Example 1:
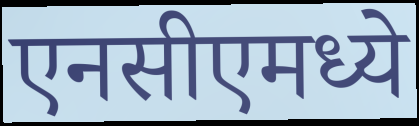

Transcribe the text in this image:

एनसीएमध्ये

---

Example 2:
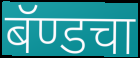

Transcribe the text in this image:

बॅण्डचा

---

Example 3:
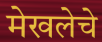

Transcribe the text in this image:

मेखलेचे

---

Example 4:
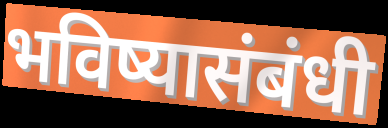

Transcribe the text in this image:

भविष्यासंबंधी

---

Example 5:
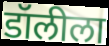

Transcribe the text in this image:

डॉलीला